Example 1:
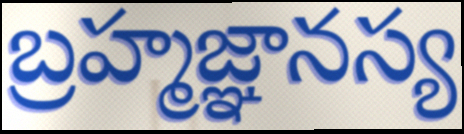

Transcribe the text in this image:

బ్రహ్మజ్ఞానస్య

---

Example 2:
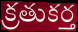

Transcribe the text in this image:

క్రతుకర్త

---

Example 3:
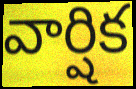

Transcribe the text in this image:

వార్షిక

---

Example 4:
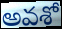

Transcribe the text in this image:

అవశో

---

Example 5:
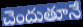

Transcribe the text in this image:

చెందుతూనే